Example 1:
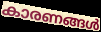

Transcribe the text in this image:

കാരണങ്ങൾ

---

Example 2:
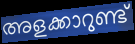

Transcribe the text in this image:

അളക്കാറുണ്ട്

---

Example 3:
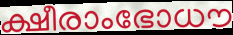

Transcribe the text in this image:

ക്ഷീരാംഭോധൗ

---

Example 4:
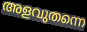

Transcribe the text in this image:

അളവുതന്നെ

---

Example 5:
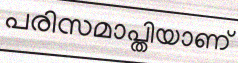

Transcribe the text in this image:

പരിസമാപ്തിയാണ്